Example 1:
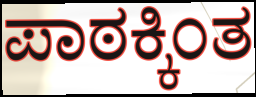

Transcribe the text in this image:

ಪಾಠಕ್ಕಿಂತ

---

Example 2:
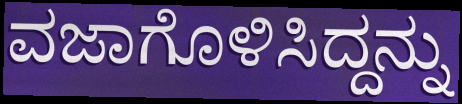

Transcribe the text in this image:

ವಜಾಗೊಳಿಸಿದ್ದನ್ನು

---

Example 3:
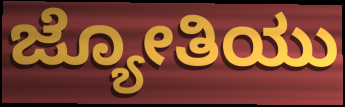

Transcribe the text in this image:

ಜ್ಯೋತಿಯು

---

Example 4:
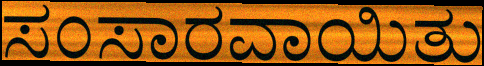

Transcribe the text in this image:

ಸಂಸಾರವಾಯಿತು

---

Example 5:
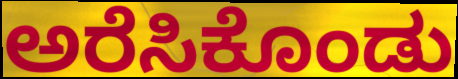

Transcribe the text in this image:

ಅರೆಸಿಕೊಂಡು